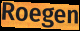
Roegen